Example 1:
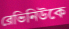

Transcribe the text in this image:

রেভিনিউকে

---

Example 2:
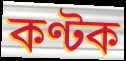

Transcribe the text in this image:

কণ্টক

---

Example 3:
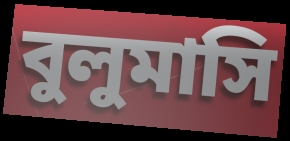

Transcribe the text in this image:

বুলুমাসি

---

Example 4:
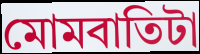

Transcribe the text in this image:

মোমবাতিটা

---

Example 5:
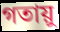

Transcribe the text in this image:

গতায়ু